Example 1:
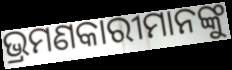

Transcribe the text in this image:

ଭ୍ରମଣକାରୀମାନଙ୍କୁ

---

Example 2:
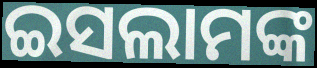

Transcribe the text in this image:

ଇସଲାମଙ୍କ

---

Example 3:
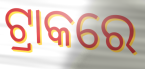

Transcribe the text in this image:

ଟ୍ରାକରେ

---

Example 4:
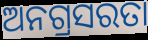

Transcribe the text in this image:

ଅନଗ୍ରସରତା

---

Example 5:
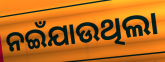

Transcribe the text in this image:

ନଇଁଯାଉଥିଲା